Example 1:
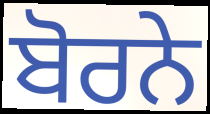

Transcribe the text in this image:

ਬੋਰਨੇ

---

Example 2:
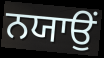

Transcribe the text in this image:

ਨਯਾਉਂ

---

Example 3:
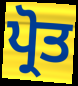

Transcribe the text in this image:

ਪ੍ਰੋਤ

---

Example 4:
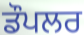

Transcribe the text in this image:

ਡੌਪਲਰ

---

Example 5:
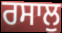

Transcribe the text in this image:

ਰਸਾਲੁ